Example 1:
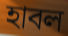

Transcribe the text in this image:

হাবল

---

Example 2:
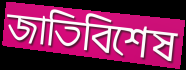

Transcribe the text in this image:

জাতিবিশেষ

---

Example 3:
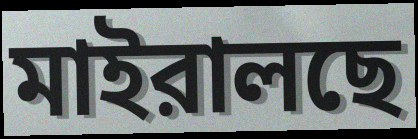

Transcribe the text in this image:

মাইরালছে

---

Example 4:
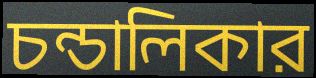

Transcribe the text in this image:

চন্ডালিকার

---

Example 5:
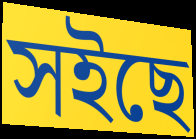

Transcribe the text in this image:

সইছে